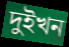
দুইখন